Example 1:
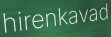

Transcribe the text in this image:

hirenkavad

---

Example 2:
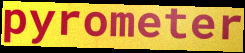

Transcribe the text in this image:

pyrometer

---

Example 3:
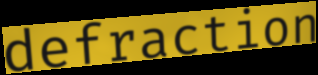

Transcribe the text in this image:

defraction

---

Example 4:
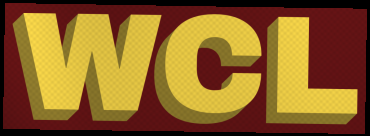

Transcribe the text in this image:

WCL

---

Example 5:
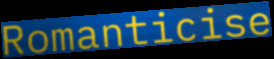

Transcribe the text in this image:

Romanticise